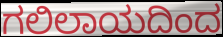
ಗಲಿಲಾಯದಿಂದ